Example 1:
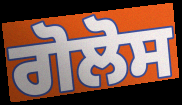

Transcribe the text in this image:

ਗੋਲੋਸ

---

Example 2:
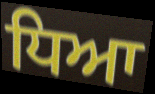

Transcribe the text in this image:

ਧਿਆ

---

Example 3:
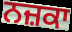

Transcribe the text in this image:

ਨਜ਼ਕਾ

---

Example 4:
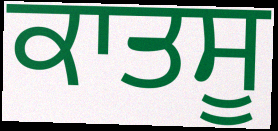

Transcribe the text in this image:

ਕਾਤਸੂ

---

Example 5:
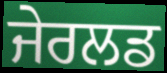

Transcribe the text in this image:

ਜੇਰਲਡ